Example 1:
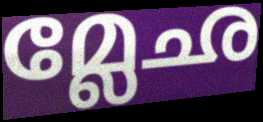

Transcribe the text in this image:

മ്ലേഛ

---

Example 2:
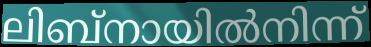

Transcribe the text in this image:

ലിബ്നായിൽനിന്ന്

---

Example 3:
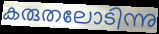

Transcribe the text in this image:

കരുതലോടിന്നു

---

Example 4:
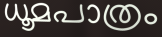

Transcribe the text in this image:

ധൂമപാത്രം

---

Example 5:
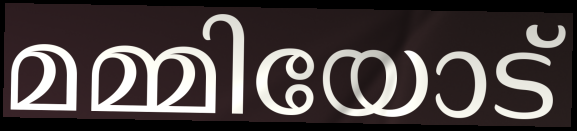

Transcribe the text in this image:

മമ്മിയോട്